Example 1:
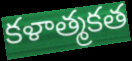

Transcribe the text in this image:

కళాత్మకత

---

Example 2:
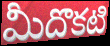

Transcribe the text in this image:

మీదొకటి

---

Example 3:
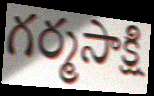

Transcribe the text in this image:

గర్మసాక్షి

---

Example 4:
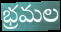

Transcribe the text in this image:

భ్రమల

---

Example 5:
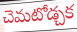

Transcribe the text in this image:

చెమటోడ్చక